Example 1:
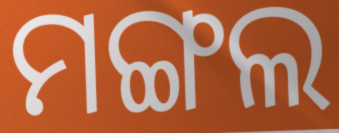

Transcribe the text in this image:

ମଙ୍ଗଲ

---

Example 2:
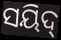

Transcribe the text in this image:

ସୟିଦ୍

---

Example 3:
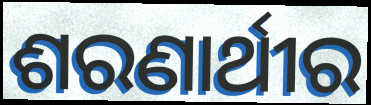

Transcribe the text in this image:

ଶରଣାର୍ଥୀର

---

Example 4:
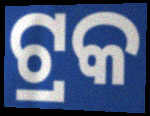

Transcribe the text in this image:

ଟ୍ରକ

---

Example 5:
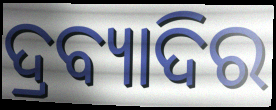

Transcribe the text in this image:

ଦ୍ରବ୍ୟାଦିର